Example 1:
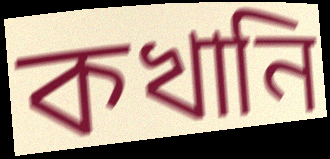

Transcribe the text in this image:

কখানি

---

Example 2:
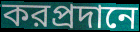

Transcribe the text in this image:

করপ্রদানে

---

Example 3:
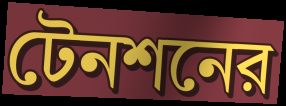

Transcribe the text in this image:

টেনশনের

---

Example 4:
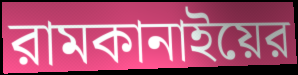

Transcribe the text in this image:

রামকানাইয়ের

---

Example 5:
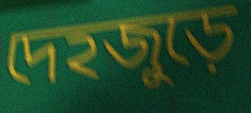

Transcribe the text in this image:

দেহজুড়ে